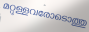
മറ്റുള്ളവരോടൊത്തു